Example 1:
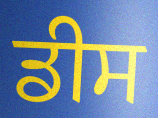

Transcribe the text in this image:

ਡੀਸ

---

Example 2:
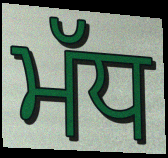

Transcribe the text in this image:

ਮੱਧ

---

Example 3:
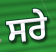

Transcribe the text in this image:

ਸਰੇ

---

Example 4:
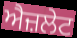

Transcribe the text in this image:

ਐਜ਼ਲੇਟ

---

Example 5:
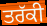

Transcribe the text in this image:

ਤਰੱਕੀ